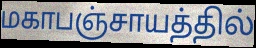
மகாபஞ்சாயத்தில்